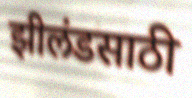
झीलंडसाठी